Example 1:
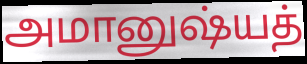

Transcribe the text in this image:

அமானுஷ்யத்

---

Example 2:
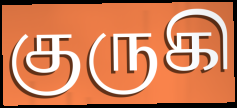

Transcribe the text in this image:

குருகி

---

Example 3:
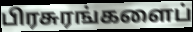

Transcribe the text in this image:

பிரசுரங்களைப்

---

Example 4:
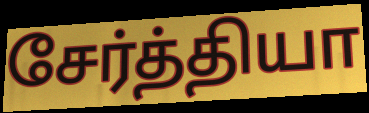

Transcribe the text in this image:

சேர்த்தியா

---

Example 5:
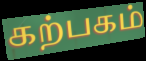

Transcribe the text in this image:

கற்பகம்